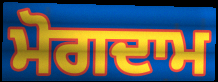
ਮੋਗਦਾਮ